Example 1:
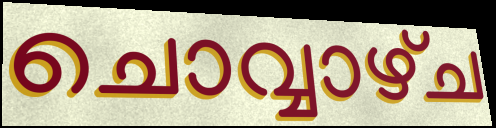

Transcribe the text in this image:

ചൊവ്വാഴ്‌ച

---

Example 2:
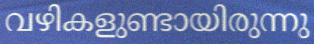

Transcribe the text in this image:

വഴികളുണ്ടായിരുന്നു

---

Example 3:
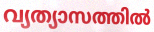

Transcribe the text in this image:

വ്യത്യാസത്തിൽ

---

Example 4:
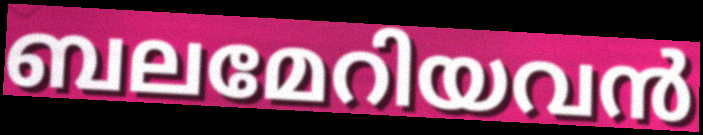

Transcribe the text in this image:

ബലമേറിയവൻ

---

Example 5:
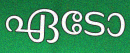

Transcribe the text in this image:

ഏടോ